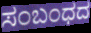
ಸಂಬಂಧದ